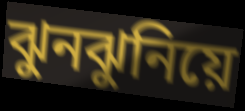
ঝুনঝুনিয়ে